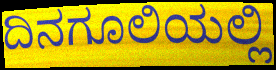
ದಿನಗೂಲಿಯಲ್ಲಿ